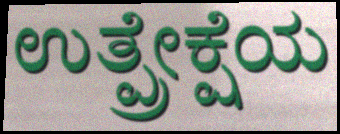
ಉತ್ಪ್ರೇಕ್ಷೆಯ